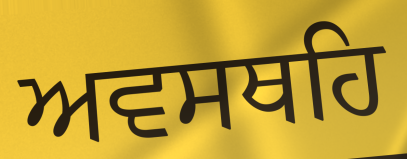
ਅਵਸਥਹਿ